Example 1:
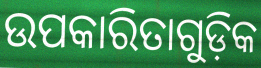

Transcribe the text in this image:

ଉପକାରିତାଗୁଡ଼ିକ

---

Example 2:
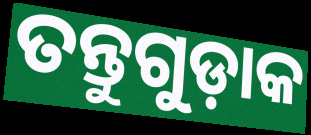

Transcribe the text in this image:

ତନ୍ତୁଗୁଡ଼ାକ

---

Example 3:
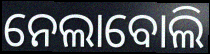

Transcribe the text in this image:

ନେଲାବୋଲି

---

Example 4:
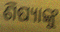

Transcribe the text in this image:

ଶିଷ୍ୟାଙ୍କୁ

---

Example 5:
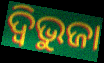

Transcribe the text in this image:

ଦ୍ଵିଭୁଜା